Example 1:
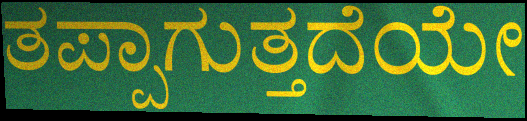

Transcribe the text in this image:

ತಪ್ಪಾಗುತ್ತದೆಯೇ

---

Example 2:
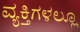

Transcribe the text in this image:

ವ್ಯಕ್ತಿಗಳಲ್ಲೂ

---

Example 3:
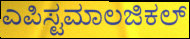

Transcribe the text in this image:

ಎಪಿಸ್ಟಮಾಲಜಿಕಲ್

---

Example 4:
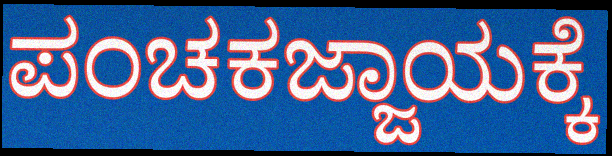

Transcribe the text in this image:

ಪಂಚಕಜ್ಜಾಯಕ್ಕೆ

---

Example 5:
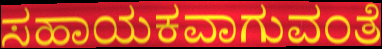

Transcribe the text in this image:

ಸಹಾಯಕವಾಗುವಂತೆ